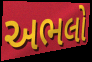
અભલો